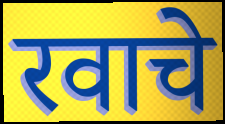
रवाचे